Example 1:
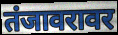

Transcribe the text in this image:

तंजावरावर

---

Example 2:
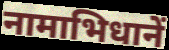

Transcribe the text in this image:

नामाभिधानें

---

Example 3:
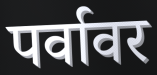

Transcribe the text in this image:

पर्वावर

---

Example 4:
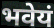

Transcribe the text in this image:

भवेयं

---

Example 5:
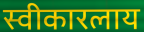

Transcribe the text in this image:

स्वीकारलाय